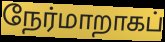
நேர்மாறாகப்